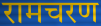
रामचरण